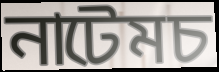
নাটেমচ